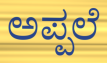
ಅಪ್ಪಲೆ